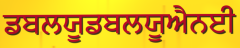
ਡਬਲਯੂਡਬਲਯੂਐਨਈ